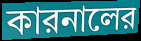
কারনালের